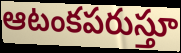
ఆటంకపరుస్తూ